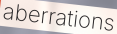
aberrations